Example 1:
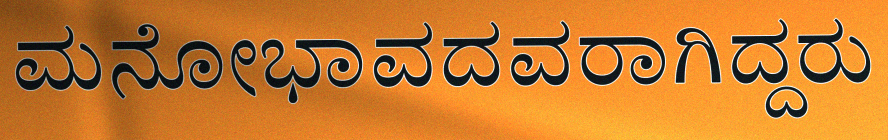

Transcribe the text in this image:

ಮನೋಭಾವದವರಾಗಿದ್ದರು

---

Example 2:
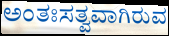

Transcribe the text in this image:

ಅಂತಃಸತ್ವವಾಗಿರುವ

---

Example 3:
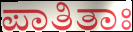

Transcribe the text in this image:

ಪಾತಿತಾಃ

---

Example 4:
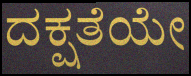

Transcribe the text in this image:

ದಕ್ಷತೆಯೇ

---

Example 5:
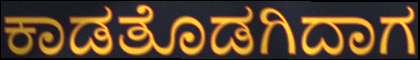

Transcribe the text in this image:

ಕಾಡತೊಡಗಿದಾಗ